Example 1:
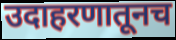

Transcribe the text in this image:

उदाहरणातूनच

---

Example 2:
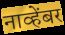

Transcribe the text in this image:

नाव्हेंबर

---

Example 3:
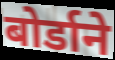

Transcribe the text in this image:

बोर्डाने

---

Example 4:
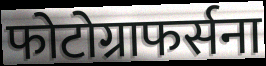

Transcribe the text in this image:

फोटोग्राफर्सना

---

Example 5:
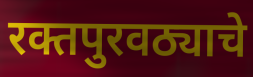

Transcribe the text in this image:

रक्तपुरवठ्याचे